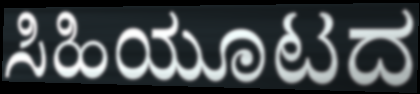
ಸಿಹಿಯೂಟದ